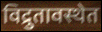
विद्रुतावस्थेत